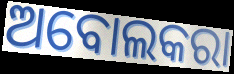
ଅବୋଲକରା